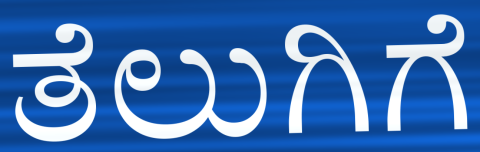
ತೆಲುಗಿಗೆ